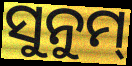
ସୁନୁମ୍